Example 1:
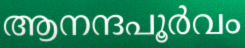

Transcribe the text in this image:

ആനന്ദപൂർവം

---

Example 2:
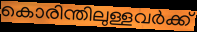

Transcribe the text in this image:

കൊരിന്തിലുള്ളവർക്ക്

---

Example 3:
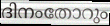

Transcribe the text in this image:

ദിനംതോറും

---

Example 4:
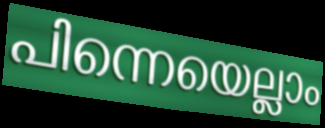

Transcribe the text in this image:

പിന്നെയെല്ലാം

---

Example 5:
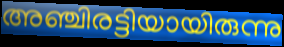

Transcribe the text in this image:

അഞ്ചിരട്ടിയായിരുന്നു